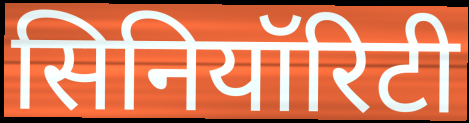
सिनियॉरिटी